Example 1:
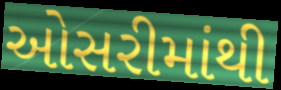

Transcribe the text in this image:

ઓસરીમાંથી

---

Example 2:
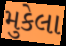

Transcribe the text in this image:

મુકેલા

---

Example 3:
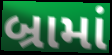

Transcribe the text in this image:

બ્રામાં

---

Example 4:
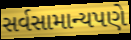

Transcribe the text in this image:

સર્વસામાન્યપણે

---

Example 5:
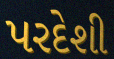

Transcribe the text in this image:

પરદેશી